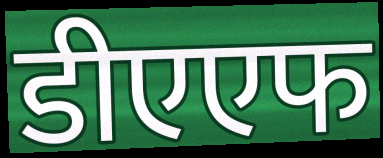
डीएएफ